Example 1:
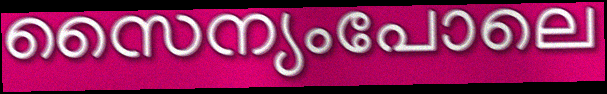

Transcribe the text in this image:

സൈന്യംപോലെ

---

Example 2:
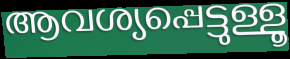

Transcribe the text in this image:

ആവശ്യപ്പെട്ടുള്ളൂ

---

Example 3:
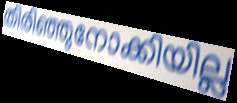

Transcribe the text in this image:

തിരിഞ്ഞുനോക്കിയില്ല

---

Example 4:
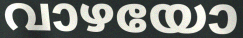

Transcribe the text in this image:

വാഴയോ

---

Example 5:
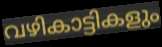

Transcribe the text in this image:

വഴികാട്ടികളും